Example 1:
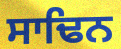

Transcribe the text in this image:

ਸਾਢਿਨ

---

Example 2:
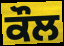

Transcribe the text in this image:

ਕੌਲ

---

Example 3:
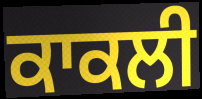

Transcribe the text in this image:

ਕਾਕਲੀ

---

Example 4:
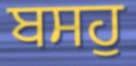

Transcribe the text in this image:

ਬਸਹੁ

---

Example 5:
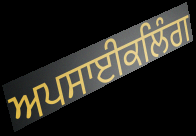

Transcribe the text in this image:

ਅਪਸਾਈਕਲਿੰਗ